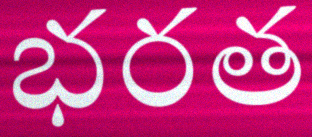
భరత